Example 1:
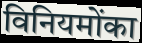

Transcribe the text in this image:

विनियमोंका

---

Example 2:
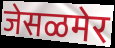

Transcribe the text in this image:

जेसळमेर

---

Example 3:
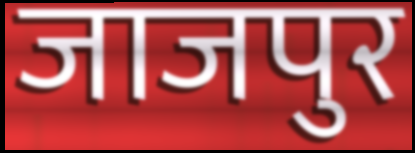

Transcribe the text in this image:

जाजपुर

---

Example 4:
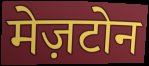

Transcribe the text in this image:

मेज़टोन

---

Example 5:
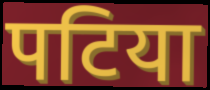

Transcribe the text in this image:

पटिया